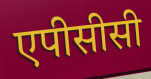
एपीसीसी